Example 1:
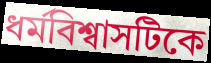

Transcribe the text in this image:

ধর্মবিশ্বাসটিকে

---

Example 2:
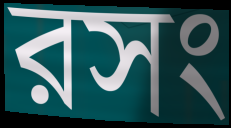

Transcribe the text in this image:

রসং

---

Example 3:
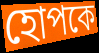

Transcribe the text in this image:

হোপকে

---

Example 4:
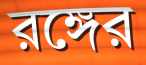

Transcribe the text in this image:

রঙ্গের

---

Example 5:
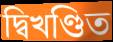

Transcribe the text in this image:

দ্বিখণ্ডিত